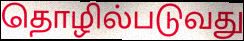
தொழில்படுவது